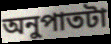
অনুপাতটা